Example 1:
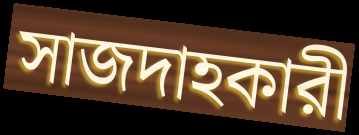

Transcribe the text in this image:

সাজদাহকারী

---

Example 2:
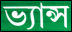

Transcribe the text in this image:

ভ্যান্স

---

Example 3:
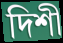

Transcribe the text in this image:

দিশী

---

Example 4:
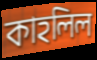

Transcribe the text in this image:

কাহলিল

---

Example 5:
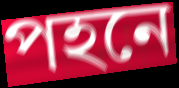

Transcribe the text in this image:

পহনে